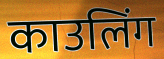
काउलिंग